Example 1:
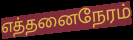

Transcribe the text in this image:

எத்தனைநேரம்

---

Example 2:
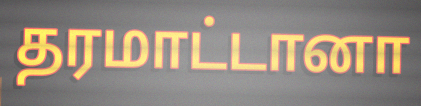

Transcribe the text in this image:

தரமாட்டானா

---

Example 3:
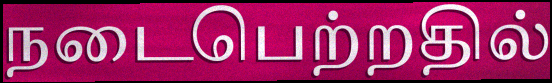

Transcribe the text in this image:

நடைபெற்றதில்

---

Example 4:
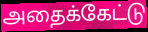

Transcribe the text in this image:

அதைக்கேட்டு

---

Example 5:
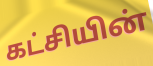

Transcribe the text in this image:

கட்சியின்